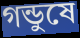
গন্ডুষে